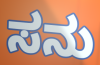
ಸನು